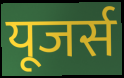
यूजर्स